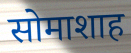
सोमाशाह